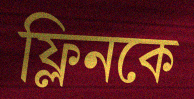
ফ্লিনকে